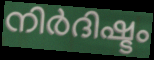
നിർദിഷ്ടം